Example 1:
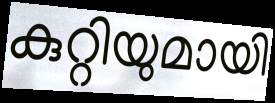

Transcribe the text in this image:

കുറ്റിയുമായി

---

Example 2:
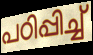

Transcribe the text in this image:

പഠിപ്പിച്ച്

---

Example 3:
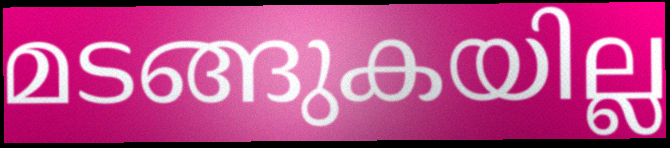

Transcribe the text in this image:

മടങ്ങുകയില്ല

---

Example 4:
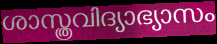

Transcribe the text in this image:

ശാസ്ത്രവിദ്യാഭ്യാസം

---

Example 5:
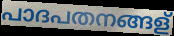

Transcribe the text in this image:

പാദപതനങ്ങള്